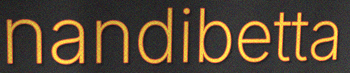
nandibetta